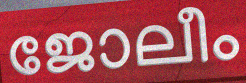
ജോലീം